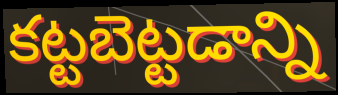
కట్టబెట్టడాన్ని